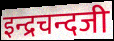
इन्द्रचन्दजी